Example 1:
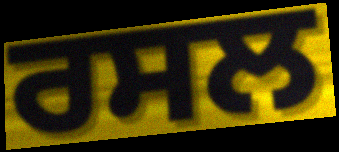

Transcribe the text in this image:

ਰਸਲ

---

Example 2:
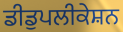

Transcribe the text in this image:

ਡੀਡੁਪਲੀਕੇਸ਼ਨ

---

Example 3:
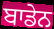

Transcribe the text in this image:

ਬਾਡੇਨ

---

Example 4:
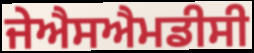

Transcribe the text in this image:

ਜੇਐਸਐਮਡੀਸੀ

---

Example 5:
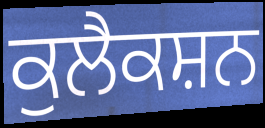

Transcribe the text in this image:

ਕੁਲੈਕਸ਼ਨ